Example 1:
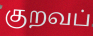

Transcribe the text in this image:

குறவப்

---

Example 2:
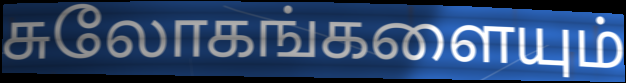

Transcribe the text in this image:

சுலோகங்களையும்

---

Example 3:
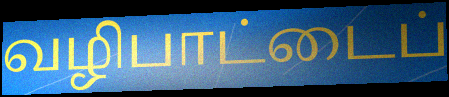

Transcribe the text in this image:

வழிபாட்டைப்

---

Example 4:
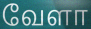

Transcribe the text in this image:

வேளா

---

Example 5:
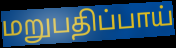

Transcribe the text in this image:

மறுபதிப்பாய்